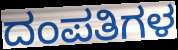
ದಂಪತಿಗಳ